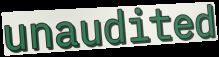
unaudited